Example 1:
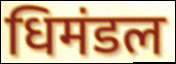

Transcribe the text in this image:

धिमंडल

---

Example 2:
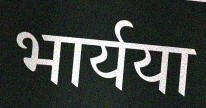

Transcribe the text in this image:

भार्यया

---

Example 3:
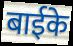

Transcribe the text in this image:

बाईके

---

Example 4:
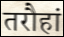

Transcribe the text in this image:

तरौहां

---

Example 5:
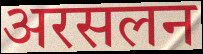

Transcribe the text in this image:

अरसलन